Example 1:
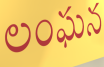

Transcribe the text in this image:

లంఘన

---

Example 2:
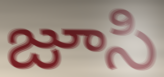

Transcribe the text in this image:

జూసి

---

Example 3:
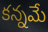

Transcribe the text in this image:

కన్నమే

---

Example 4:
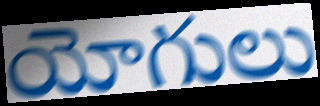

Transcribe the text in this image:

యోగులు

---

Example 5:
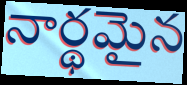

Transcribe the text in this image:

నార్థమైన